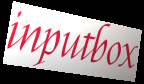
inputbox